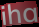
iha